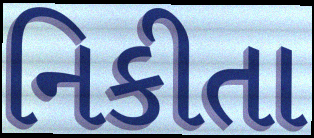
નિકીતા